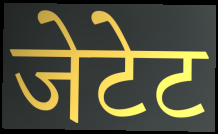
जेटेट